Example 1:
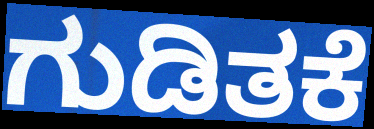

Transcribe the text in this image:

ಗುಡಿತಕೆ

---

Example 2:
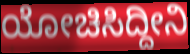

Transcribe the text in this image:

ಯೋಚಿಸಿದ್ದೀನಿ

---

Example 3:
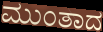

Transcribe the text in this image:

ಮುಂತಾದ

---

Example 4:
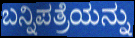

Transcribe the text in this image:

ಬನ್ನಿಪತ್ರೆಯನ್ನು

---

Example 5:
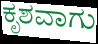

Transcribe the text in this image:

ಕೃಶವಾಗು